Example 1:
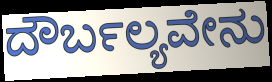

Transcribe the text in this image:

ದೌರ್ಬಲ್ಯವೇನು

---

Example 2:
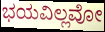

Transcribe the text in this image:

ಭಯವಿಲ್ಲವೋ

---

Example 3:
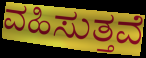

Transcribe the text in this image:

ವಹಿಸುತ್ತವೆ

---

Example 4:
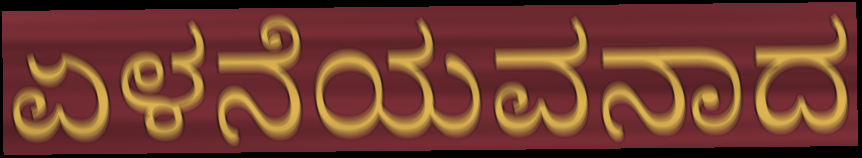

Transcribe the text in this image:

ಏಳನೆಯವನಾದ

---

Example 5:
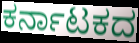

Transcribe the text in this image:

ಕರ್ನಾಟಕದ